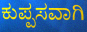
ಕುಪ್ಪಸವಾಗಿ